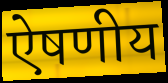
ऐषणीय